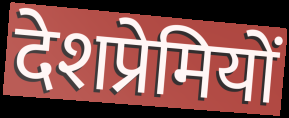
देशप्रेमियों